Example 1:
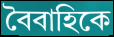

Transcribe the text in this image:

বৈবাহিকে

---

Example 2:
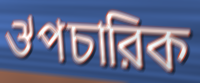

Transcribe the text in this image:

ঔপচারিক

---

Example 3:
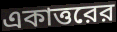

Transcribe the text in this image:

একাত্তরের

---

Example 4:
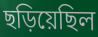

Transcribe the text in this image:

ছড়িয়েছিল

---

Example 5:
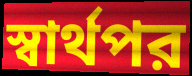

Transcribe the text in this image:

স্বার্থপর